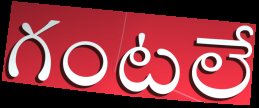
గంటలే